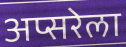
अप्सरेला